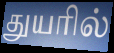
துயரில்